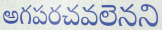
అగపరచవలెనని